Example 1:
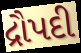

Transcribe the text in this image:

દ્રૌપદી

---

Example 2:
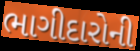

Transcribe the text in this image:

ભાગીદારોની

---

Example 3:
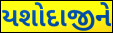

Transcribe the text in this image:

યશોદાજીને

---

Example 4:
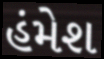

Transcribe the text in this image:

હંમેશ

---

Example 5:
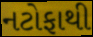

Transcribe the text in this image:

નટોફાથી